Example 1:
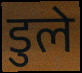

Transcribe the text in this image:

डुले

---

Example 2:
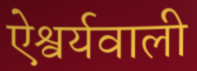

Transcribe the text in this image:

ऐश्वर्यवाली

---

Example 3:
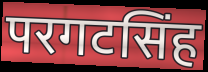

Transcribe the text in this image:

परगटसिंह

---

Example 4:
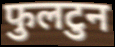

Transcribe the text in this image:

फुलटुन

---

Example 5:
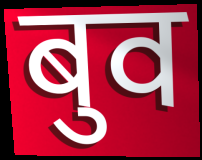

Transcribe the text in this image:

बुव